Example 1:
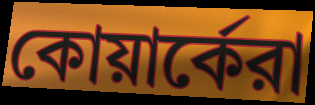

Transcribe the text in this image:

কোয়ার্কেরা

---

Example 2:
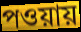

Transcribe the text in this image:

পওয়ায়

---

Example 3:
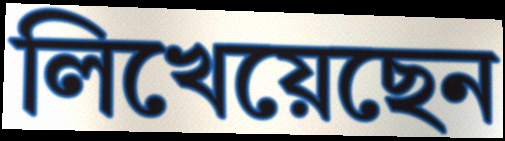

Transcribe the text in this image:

লিখেয়েছেন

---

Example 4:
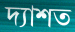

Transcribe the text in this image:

দ্যাশত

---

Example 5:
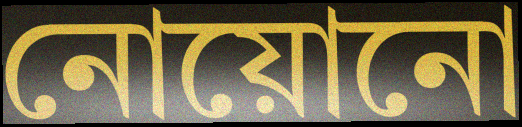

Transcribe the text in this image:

নোয়োনো